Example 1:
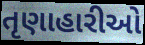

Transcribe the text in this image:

તૃણાહારીઓ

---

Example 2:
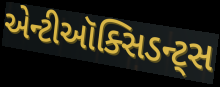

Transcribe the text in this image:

એન્ટીઑક્સિડન્ટ્સ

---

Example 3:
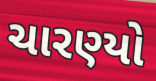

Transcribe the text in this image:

ચારણ્યો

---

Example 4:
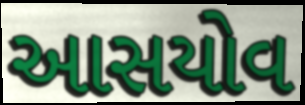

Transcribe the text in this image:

આસયોવ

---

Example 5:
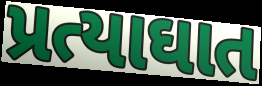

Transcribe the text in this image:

પ્રત્યાઘાત